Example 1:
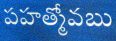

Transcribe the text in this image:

పహత్మోవబు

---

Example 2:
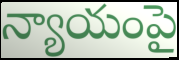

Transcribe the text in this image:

న్యాయంపై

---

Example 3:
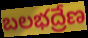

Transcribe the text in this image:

బలభద్రేణ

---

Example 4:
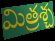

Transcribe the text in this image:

మిత్రశ్చ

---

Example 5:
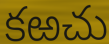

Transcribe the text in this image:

కఱచు